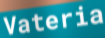
Vateria